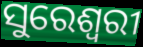
ସୁରେଶ୍ଵରୀ